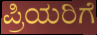
ಪ್ರಿಯರಿಗೆ